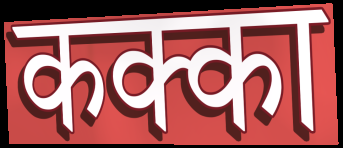
कक्का